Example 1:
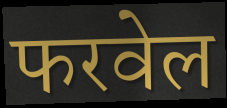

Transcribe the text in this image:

फरवेल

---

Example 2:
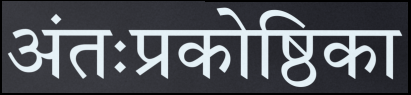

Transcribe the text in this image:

अंतःप्रकोष्ठिका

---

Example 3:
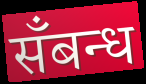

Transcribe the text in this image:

सँबन्ध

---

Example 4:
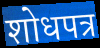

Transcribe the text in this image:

शोधपत्र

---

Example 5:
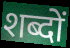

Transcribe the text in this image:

शब्‍दों